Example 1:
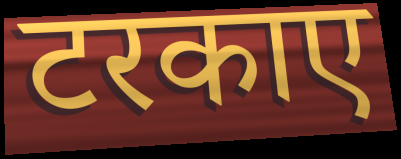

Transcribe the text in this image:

टरकाए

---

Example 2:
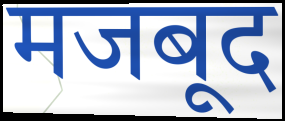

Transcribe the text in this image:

मजबूद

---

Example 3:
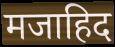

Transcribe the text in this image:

मजाहिद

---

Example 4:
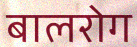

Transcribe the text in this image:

बालरोग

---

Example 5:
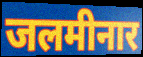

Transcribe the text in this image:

जलमीनार